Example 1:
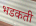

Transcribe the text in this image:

भडकती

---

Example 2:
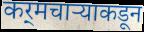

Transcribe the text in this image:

कर्मचाऱ्याकडून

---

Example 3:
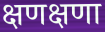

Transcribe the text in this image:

क्षणक्षणा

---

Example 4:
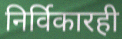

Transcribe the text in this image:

निर्विकारही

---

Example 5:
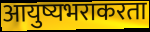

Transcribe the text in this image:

आयुष्यभराकरता